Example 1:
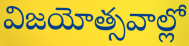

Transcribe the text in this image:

విజయోత్సవాల్లో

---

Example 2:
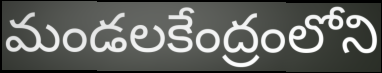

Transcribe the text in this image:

మండలకేంద్రంలోని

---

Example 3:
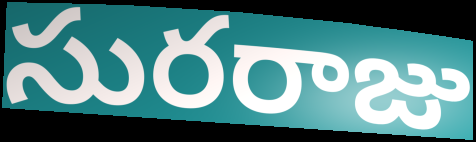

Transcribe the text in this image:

సురరాజు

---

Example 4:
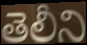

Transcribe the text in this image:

తెలీని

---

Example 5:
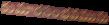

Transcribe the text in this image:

కుమారసంభవమును